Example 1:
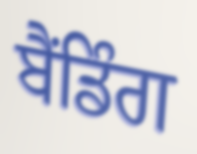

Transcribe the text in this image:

ਬੈਂਡਿੰਗ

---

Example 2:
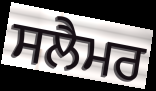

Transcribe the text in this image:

ਸਲੈਮਰ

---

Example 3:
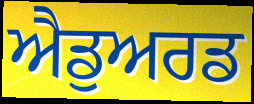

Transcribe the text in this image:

ਐਡੁਅਰਡ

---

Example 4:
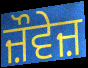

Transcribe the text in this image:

ਜ਼ੌਵੇਜ਼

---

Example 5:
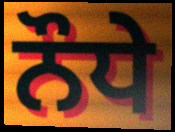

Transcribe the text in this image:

ਨੌਧੇ